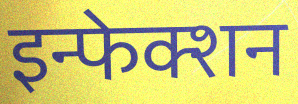
इन्फेक्शन